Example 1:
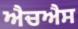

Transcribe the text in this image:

ਐਚਐਸ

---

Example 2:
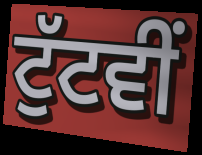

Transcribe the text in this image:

ਟੁੱਟਵੀਂ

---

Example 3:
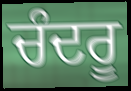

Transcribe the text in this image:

ਚੰਦਰੂ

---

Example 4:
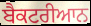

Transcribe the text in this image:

ਬੈਕਟਰੀਆਨ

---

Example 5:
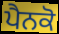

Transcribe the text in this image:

ਪੈਨਕੋ